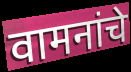
वामनांचे